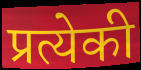
प्रत्येकी